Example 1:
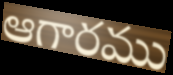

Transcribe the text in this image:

ఆగారము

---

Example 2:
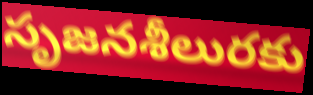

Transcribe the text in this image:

సృజనశీలురకు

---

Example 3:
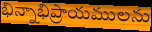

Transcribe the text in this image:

భిన్నాభిప్రాయములను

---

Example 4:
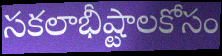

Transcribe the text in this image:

సకలాభీష్టాలకోసం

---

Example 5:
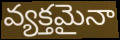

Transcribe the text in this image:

వ్యక్తమైనా